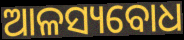
ଆଳସ୍ୟବୋଧ